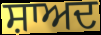
ਸ਼ਾਅਦ